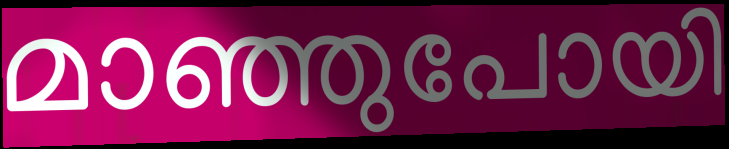
മാഞ്ഞുപോയി